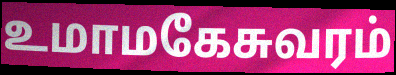
உமாமகேசுவரம்